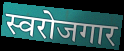
स्‍वरोजगार